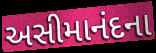
અસીમાનંદના